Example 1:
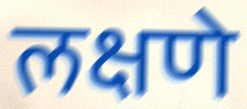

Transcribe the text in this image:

लक्षणे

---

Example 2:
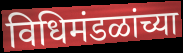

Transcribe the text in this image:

विधिमंडळांच्या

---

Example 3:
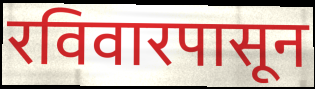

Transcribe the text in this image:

रविवारपासून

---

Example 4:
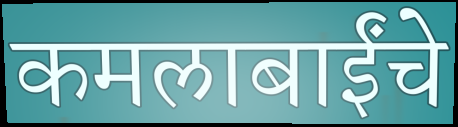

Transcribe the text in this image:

कमलाबाईंचे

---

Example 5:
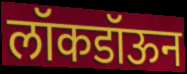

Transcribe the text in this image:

लॉकडॉऊन